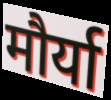
मौर्या